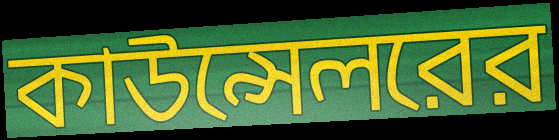
কাউন্সেলরের